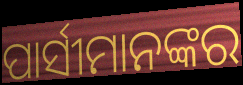
ପାର୍ସୀମାନଙ୍କର